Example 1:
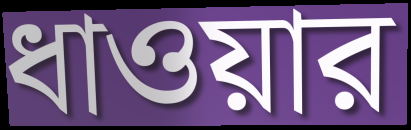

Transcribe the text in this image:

ধাওয়ার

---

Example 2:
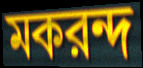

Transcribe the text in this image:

মকরন্দ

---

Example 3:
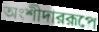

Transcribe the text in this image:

অংশীদাররূপে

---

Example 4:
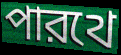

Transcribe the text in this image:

পারথে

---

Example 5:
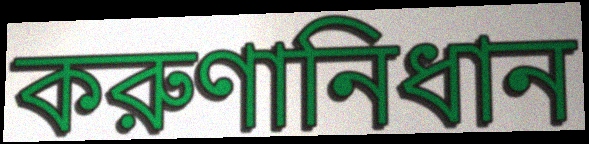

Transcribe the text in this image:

করুণানিধান